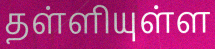
தள்ளியுள்ள